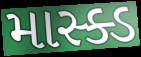
માસ્ક્ડ